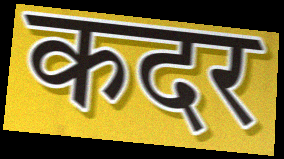
कदर